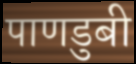
पाणडुबी